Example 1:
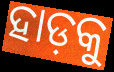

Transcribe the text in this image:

ହାଡ଼କୁ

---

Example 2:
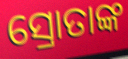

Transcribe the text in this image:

ସ୍ରୋତାଙ୍କ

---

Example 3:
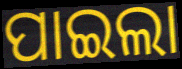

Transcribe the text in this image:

ପାଇଲା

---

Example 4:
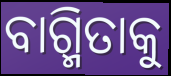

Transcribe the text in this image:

ବାଗ୍ମିତାକୁ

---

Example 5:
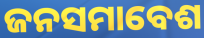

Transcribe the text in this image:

ଜନସମାବେଶ